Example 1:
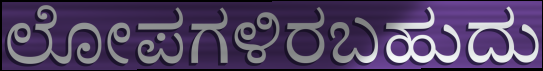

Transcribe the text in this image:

ಲೋಪಗಳಿರಬಹುದು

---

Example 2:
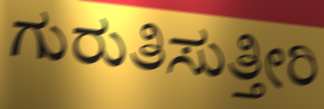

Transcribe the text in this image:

ಗುರುತಿಸುತ್ತೀರಿ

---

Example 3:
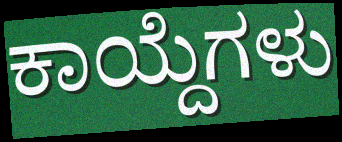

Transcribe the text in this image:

ಕಾಯ್ದೆಗಳು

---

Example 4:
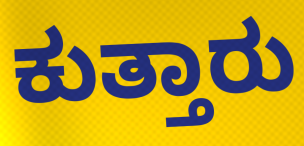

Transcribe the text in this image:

ಕುತ್ತಾರು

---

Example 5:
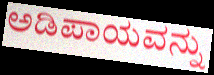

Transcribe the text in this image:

ಅಡಿಪಾಯವನ್ನು